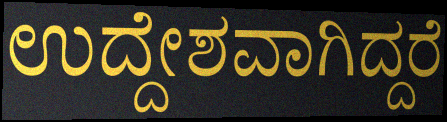
ಉದ್ದೇಶವಾಗಿದ್ದರೆ